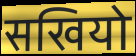
सखियो